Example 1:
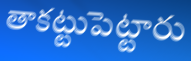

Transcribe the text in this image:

తాకట్టుపెట్టారు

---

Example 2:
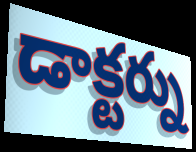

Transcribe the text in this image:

డాక్టర్ను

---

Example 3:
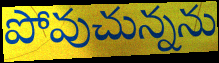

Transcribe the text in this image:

పోవుచున్నను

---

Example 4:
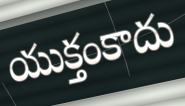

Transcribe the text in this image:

యుక్తంకాదు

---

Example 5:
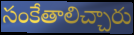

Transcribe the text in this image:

సంకేతాలిచ్చారు